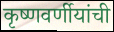
कृष्णवर्णीयांची